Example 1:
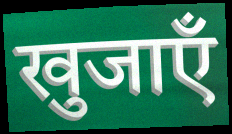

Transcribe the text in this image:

खुजाएँ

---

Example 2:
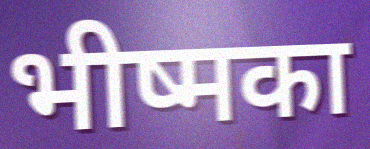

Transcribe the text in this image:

भीष्मका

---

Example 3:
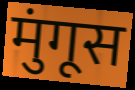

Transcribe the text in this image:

मुंगूस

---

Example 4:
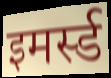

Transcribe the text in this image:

इमर्स्ड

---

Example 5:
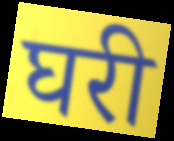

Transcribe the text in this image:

घरी